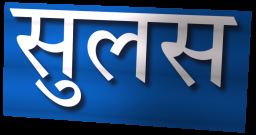
सुलस